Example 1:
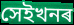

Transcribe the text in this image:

সেইখনৰ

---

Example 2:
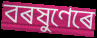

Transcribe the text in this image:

বৰষুণেৰে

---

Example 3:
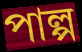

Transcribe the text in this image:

পাল্প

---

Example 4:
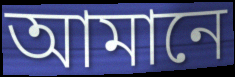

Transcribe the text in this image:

আমানে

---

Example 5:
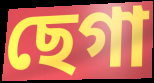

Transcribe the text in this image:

ছেগা